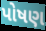
પોષણ